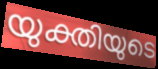
യുക്തിയുടെ